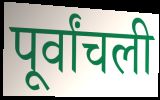
पूर्वांचली